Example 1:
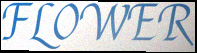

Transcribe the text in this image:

FLOWER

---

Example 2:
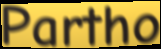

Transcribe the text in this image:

Partho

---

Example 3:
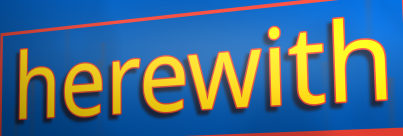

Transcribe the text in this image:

herewith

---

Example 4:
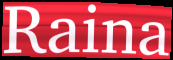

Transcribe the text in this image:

Raina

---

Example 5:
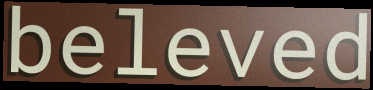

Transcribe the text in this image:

beleved